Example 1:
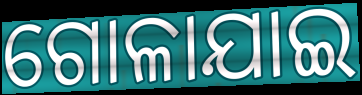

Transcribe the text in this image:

ଗୋଳାଯାଇ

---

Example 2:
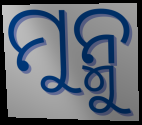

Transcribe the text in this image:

ମୁନ୍ମୁ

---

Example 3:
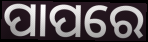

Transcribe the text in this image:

ପାପରେ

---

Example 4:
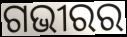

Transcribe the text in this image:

ଗଭୀରର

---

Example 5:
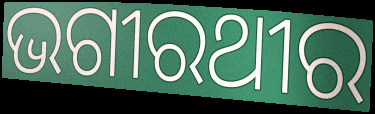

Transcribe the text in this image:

ଭଗୀରଥୀର